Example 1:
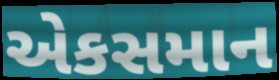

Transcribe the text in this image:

એકસમાન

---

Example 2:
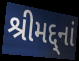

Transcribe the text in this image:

શ્રીમદ્દ્નાં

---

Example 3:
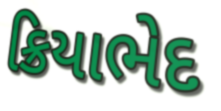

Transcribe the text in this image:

ક્રિયાભેદ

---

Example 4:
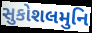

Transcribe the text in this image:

સુકોશલમુનિ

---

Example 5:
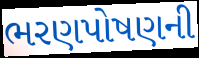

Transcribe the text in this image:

ભરણપોષણની